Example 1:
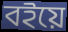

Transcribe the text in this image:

বইয়ে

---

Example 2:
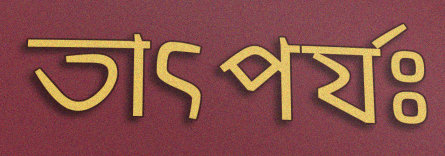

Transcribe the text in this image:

তাৎপর্যঃ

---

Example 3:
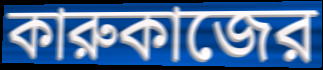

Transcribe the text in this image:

কারুকাজের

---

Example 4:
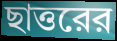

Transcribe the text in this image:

ছাত্তরের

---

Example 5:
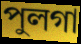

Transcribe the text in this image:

পুলগা